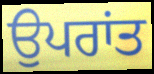
ਉਪਰਾਂਤ